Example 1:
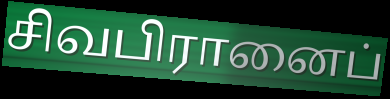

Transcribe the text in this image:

சிவபிரானைப்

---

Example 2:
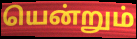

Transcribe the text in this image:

யென்றும்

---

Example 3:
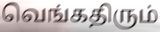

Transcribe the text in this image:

வெங்கதிரும்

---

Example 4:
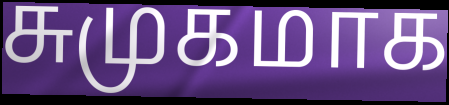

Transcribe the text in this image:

சுமுகமாக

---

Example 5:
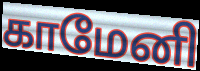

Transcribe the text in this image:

காமேனி